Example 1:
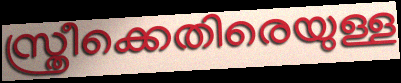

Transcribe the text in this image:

സ്ത്രീക്കെതിരെയുള്ള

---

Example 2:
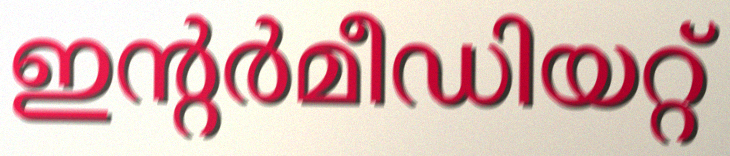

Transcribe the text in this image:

ഇന്റർമീഡിയറ്റ്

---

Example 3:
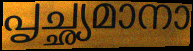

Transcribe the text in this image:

പൃച്ഛ്യമാനാ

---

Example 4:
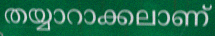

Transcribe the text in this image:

തയ്യാറാക്കലാണ്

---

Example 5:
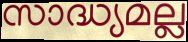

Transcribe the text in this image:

സാദ്ധ്യമല്ല